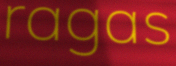
ragas